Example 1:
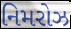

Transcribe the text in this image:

નિમરોઝ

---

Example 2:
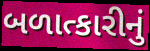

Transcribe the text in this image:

બળાત્કારીનું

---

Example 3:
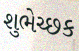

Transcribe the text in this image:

શુભેચ્છક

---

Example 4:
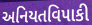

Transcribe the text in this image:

અનિયતવિપાકી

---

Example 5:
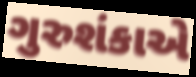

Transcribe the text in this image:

ગુરુશંકાએ